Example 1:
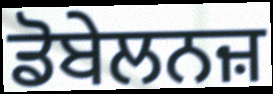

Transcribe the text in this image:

ਡੋਬੇਲਨਜ਼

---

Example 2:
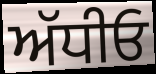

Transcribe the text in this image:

ਅੱਧੀਓ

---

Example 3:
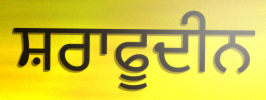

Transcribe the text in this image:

ਸ਼ਰਾਫੂਦੀਨ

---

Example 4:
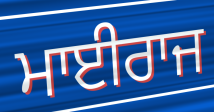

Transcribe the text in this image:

ਮਾਈਰਾਜ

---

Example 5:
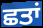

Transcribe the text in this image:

ਛਤਾਂ